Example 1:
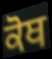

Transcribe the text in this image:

ਕੋਥ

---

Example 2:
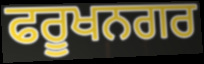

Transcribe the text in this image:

ਫਰੂਖਨਗਰ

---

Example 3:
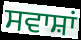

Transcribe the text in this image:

ਸਵਾਸ਼ਾਂ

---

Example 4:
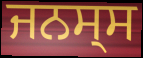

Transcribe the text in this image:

ਜਨਸ੍ਸ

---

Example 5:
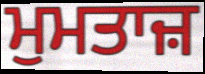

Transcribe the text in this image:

ਮੁਮਤਾਜ਼